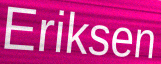
Eriksen